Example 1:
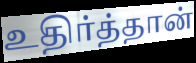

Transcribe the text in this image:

உதிர்த்தான்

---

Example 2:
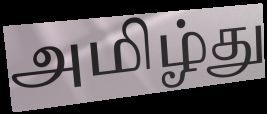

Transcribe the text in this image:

அமிழ்து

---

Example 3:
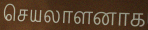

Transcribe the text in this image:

செயலாளனாக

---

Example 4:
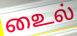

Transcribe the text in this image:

உைல்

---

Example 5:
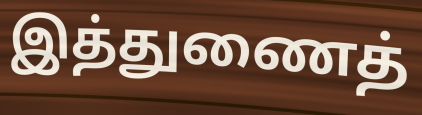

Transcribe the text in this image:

இத்துணைத்